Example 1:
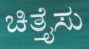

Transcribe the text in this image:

ಚಿತ್ತೈಸು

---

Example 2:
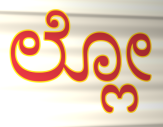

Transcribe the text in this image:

ಲ್ಲೋ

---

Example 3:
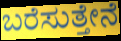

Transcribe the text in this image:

ಬರೆಸುತ್ತೇನೆ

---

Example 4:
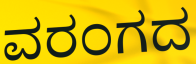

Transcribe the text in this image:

ವರಂಗದ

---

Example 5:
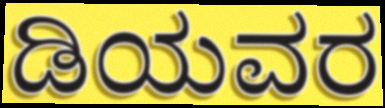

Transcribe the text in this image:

ಡಿಯವರ